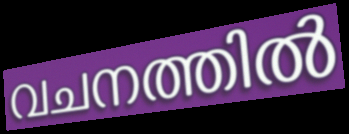
വചനത്തിൽ